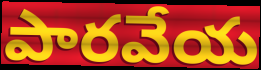
పారవేయ